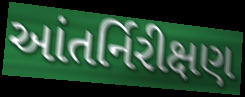
આંતર્નિરીક્ષણ